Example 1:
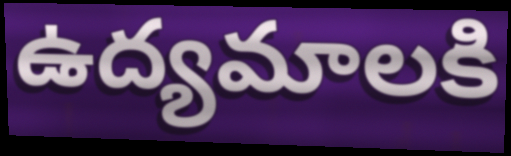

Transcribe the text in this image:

ఉద్యమాలకి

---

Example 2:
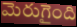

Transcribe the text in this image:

మెరుగైంది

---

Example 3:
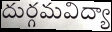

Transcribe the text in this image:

దుర్గమవిద్యా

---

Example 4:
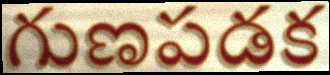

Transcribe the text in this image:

గుణపడక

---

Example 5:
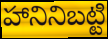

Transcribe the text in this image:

హానినిబట్టి